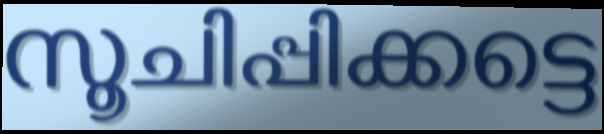
സൂചിപ്പിക്കട്ടെ